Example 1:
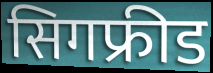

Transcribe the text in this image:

सिगफ्रीड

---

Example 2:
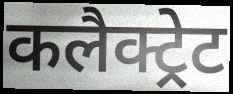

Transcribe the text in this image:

कलैक्ट्रेट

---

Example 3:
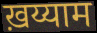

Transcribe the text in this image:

ख़य्याम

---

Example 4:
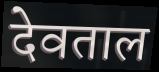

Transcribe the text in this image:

देवताल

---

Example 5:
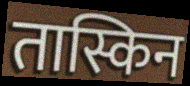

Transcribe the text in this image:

तास्किन